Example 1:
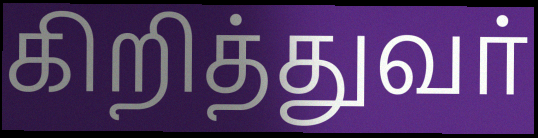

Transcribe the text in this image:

கிறித்துவர்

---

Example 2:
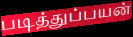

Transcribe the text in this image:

படித்துப்பயன்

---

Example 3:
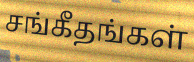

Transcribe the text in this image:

சங்கீதங்கள்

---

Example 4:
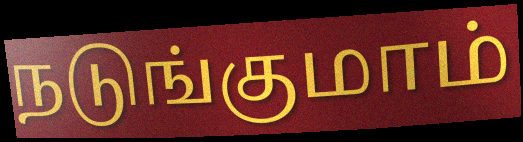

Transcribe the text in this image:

நடுங்குமாம்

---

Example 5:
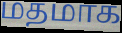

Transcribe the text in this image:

மதமாக